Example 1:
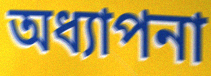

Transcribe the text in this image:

অধ্যাপনা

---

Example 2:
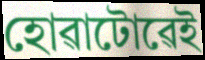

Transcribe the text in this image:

হোৱাটোৱেই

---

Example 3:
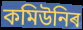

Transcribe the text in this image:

কমিউনিৰ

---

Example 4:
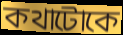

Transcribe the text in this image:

কথাটোকে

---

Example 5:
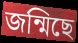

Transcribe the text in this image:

জন্মিছে